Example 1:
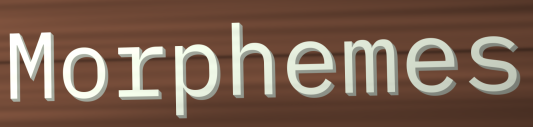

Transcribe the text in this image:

Morphemes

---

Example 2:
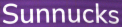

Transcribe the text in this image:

Sunnucks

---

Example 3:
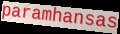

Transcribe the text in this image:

paramhansas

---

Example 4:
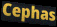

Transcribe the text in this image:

Cephas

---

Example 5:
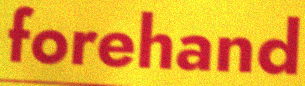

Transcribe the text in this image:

forehand